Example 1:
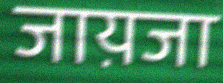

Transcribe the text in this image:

जाय़जा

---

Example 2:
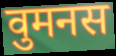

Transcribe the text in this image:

वुमनस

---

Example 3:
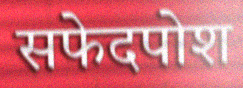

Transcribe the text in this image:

सफेदपोश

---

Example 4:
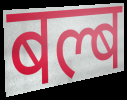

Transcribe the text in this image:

बल्‍ब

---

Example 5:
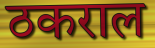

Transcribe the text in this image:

ठकराल